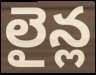
లైన్ల